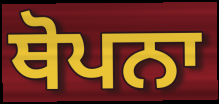
ਥੋਪਨਾ